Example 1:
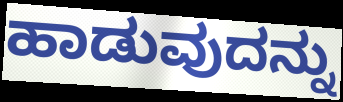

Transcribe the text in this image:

ಹಾಡುವುದನ್ನು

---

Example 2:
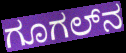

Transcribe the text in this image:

ಗೂಗಲ್‌ನ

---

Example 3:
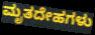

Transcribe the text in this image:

ಮೃತದೇಹಗಳು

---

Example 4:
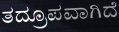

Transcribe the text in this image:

ತದ್ರೂಪವಾಗಿದೆ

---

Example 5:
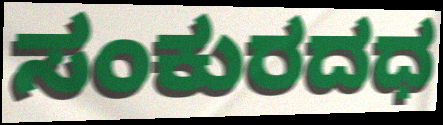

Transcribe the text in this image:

ಸಂಕುರದಧ